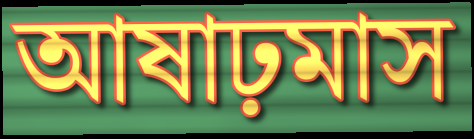
আষাঢ়মাস